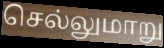
செல்லுமாறு